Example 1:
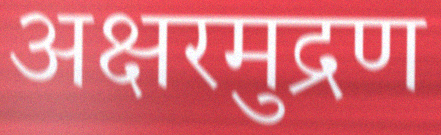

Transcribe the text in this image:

अक्षरमुद्रण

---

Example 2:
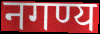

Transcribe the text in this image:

नगण्य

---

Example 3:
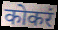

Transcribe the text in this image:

कोकरं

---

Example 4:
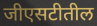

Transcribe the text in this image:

जीएसटीतील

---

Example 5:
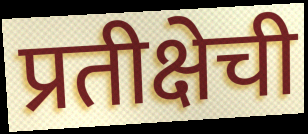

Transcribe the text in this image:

प्रतीक्षेची